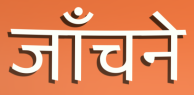
जाँचने